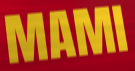
MAMI